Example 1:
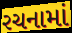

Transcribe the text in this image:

રચનામાં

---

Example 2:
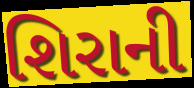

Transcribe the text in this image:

શિરાની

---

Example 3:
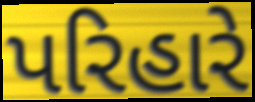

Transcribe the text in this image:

પરિહારે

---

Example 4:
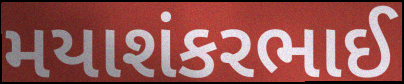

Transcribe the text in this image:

મયાશંકરભાઈ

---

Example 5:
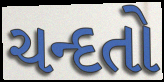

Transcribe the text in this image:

ચન્દતો